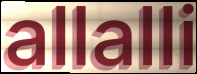
allalli